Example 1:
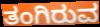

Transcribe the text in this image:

ತಂಗಿರುವ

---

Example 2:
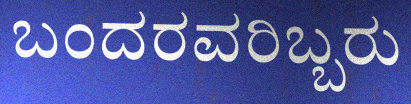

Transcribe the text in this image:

ಬಂದರವರಿಬ್ಬರು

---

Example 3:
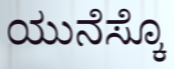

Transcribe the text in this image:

ಯುನೆಸ್ಕೊ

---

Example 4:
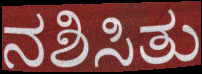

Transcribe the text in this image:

ನಶಿಸಿತು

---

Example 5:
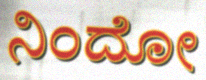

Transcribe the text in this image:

ನಿಂದೋ